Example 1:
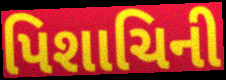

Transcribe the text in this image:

પિશાચિની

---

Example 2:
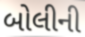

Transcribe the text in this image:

બોલીની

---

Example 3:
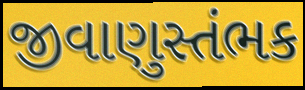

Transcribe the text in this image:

જીવાણુસ્તંભક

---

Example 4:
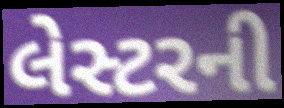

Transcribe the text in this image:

લેસ્ટરની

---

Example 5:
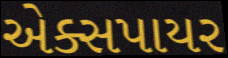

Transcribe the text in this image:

એક્સપાયર